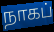
நாகப்